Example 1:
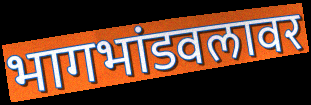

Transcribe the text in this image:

भागभांडवलावर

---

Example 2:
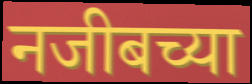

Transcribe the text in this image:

नजीबच्या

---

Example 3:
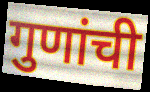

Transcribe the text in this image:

गुणांची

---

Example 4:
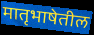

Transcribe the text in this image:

मातृभाषेतील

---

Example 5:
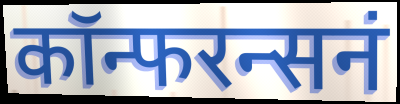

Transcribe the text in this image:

कॉन्फरन्सनं